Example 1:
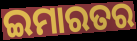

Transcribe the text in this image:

ଇମାରତର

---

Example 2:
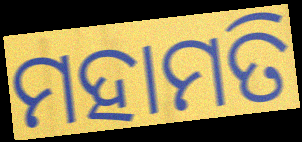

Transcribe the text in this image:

ମହାମତି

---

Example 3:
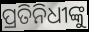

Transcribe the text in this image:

ପ୍ରତିନିଧୀଙ୍କୁ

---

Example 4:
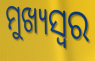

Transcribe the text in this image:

ମୁଖ୍ୟସ୍ୱର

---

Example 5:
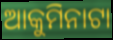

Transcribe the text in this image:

ଆକୁମିନାଟା